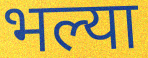
भल्या